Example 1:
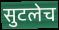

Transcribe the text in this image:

सुटलेच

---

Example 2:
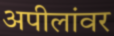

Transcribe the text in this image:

अपीलांवर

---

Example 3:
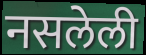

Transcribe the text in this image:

नसलेली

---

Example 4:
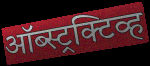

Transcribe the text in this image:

ऑब्स्ट्रक्टिव्ह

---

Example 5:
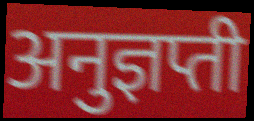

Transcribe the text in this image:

अनुज्ञप्ती